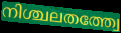
നിശ്ചലതത്ത്വേ